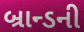
બ્રાન્ડની